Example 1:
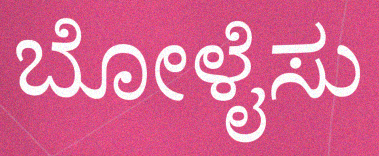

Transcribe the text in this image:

ಬೋಳೈಸು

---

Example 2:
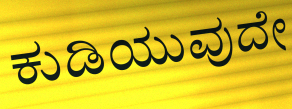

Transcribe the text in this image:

ಕುಡಿಯುವುದೇ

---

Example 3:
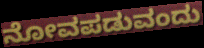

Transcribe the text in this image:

ನೋವಪಡುವಂದು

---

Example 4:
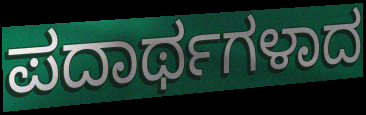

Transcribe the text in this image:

ಪದಾರ್ಥಗಳಾದ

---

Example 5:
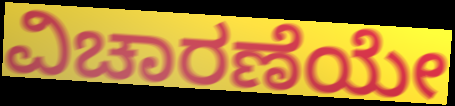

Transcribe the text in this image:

ವಿಚಾರಣೆಯೇ